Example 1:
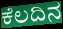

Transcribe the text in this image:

ಕೆಲದಿನ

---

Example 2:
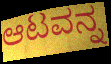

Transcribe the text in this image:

ಆಟವನ್ನ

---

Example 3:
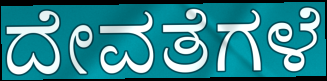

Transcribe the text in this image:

ದೇವತೆಗಳೆ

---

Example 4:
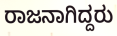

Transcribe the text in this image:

ರಾಜನಾಗಿದ್ದರು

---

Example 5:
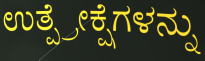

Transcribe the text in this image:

ಉತ್ಪ್ರೇಕ್ಷೆಗಳನ್ನು